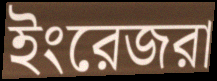
ইংরেজরা